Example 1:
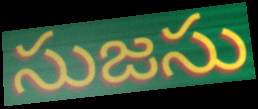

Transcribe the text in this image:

సుజసు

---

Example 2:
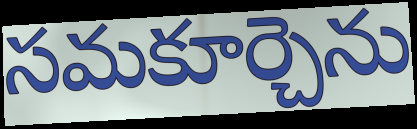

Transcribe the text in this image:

సమకూర్చెను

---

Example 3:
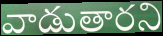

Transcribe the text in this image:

వాడుతారని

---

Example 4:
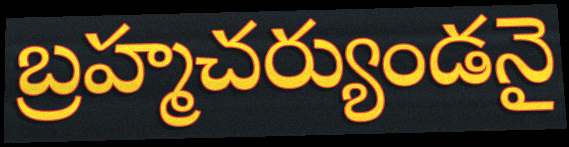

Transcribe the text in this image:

బ్రహ్మచర్యుండనై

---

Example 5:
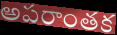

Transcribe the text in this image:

అపరాంతక